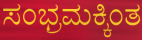
ಸಂಭ್ರಮಕ್ಕಿಂತ